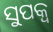
ସୁପକ୍ବ